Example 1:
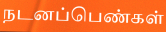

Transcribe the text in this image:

நடனப்பெண்கள்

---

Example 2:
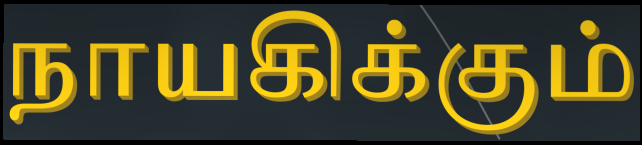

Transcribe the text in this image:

நாயகிக்கும்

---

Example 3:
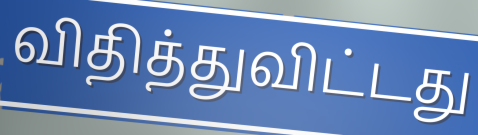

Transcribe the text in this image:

விதித்துவிட்டது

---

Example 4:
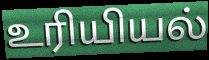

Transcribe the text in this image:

உரியியல்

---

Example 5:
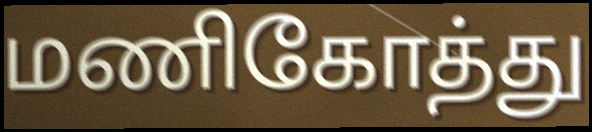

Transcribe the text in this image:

மணிகோத்து